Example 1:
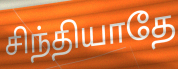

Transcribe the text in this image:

சிந்தியாதே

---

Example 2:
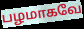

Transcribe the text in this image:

பழமாகவே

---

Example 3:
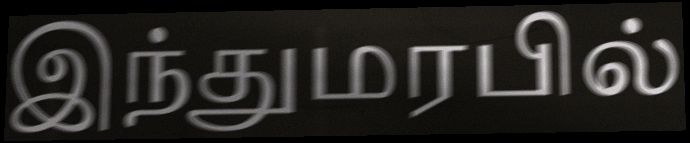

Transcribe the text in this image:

இந்துமரபில்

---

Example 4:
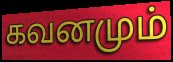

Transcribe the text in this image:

கவனமும்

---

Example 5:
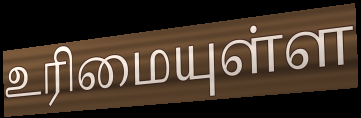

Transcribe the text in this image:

உரிமையுள்ள